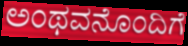
ಅಂಥವನೊಂದಿಗೆ